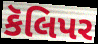
કૅલિપર